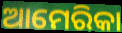
ଆମେରିକା